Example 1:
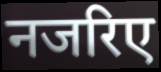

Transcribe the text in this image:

नजरिए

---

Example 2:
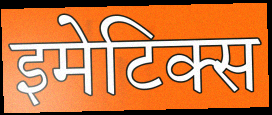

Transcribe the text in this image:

इमेटिक्स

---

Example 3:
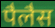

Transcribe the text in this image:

पैलैस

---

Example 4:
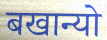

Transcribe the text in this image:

बखान्यो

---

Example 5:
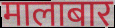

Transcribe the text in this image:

मालाबार